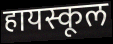
हायस्‍कूल